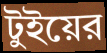
টুইয়ের